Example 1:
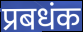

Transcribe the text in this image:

प्रबधंक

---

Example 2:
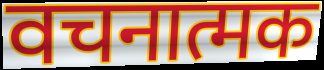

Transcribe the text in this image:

वचनात्मक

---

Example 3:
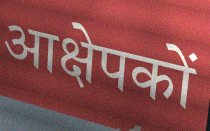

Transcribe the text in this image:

आक्षेपकों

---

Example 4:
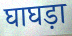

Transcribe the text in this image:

घाघड़ा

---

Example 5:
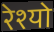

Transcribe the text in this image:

रेश्यो